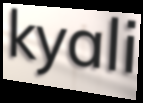
kyali